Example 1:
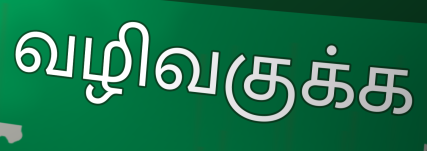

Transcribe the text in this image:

வழிவகுக்க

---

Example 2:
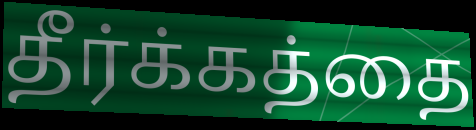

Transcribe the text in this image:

தீர்க்கத்தை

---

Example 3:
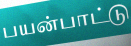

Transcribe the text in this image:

பயன்பாட்டு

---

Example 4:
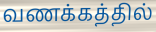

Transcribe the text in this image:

வணக்கத்தில்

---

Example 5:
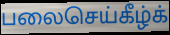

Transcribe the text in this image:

பலைசெய்கீழ்க்